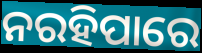
ନରହିପାରେ